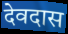
देवदास